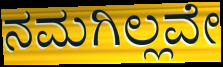
ನಮಗಿಲ್ಲವೇ